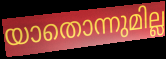
യാതൊന്നുമില്ല